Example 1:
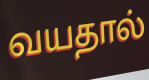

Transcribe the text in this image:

வயதால்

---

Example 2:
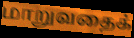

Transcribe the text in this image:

மாறுவதைக்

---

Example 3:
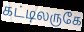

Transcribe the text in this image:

கட்டிலருகே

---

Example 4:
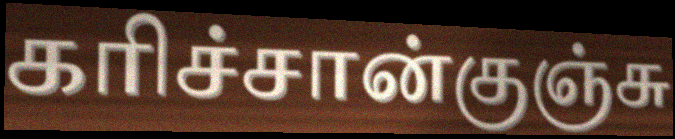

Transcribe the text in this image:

கரிச்சான்குஞ்சு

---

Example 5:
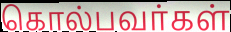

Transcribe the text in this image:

கொல்பவர்கள்